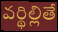
వర్థిల్లితే